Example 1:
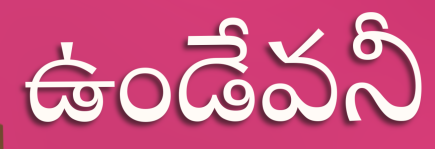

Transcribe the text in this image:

ఉండేవనీ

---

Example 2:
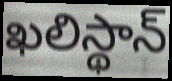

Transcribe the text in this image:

ఖలిస్థాన్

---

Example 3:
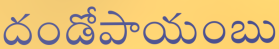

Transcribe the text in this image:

దండోపాయంబు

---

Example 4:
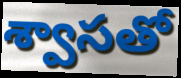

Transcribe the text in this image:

శ్వాసతో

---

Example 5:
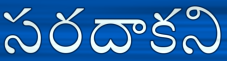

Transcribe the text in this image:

సరదాకని